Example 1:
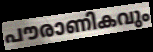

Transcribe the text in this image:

പൗരാണികവും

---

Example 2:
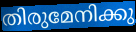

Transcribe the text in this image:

തിരുമേനിക്കു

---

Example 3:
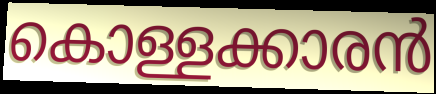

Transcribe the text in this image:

കൊള്ളക്കാരൻ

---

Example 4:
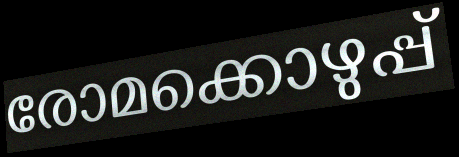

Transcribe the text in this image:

രോമക്കൊഴുപ്പ്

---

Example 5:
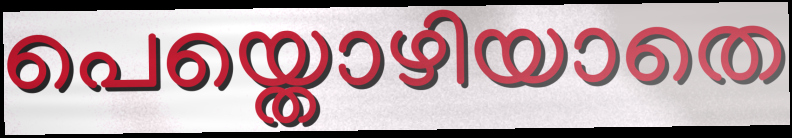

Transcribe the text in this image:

പെയ്തൊഴിയാതെ